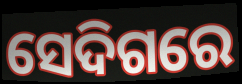
ସେଦିଗରେ